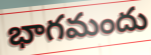
భాగమందు